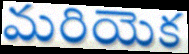
మరియెక